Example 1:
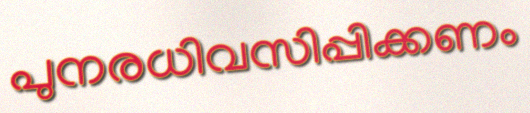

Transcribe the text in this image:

പുനരധിവസിപ്പിക്കണം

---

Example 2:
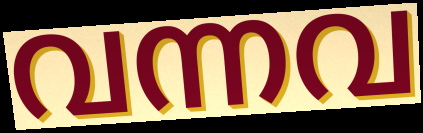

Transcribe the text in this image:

വന്നവ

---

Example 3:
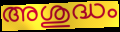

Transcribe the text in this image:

അശുദ്ധം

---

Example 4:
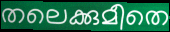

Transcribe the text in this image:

തലെക്കുമീതെ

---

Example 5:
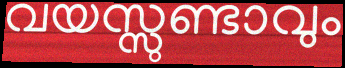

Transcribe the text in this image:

വയസ്സുണ്ടാവും